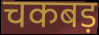
चकबड़